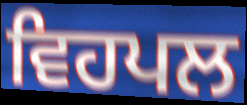
ਵਿਹਪਲ